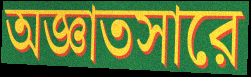
অজ্ঞাতসারে